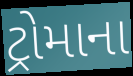
ટ્રોમાના